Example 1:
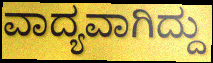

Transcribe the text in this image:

ವಾದ್ಯವಾಗಿದ್ದು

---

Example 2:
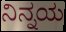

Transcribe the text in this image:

ನಿನ್ನಯ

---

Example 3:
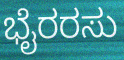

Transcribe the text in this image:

ಭೈರರಸು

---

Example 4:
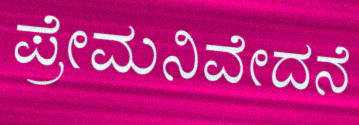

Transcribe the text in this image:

ಪ್ರೇಮನಿವೇದನೆ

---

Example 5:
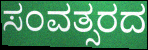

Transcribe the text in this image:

ಸಂವತ್ಸರದ